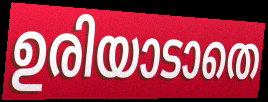
ഉരിയാടാതെ